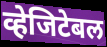
व्हेजिटेबल